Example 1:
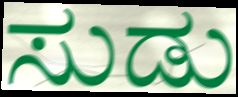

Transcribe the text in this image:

ಸುಡು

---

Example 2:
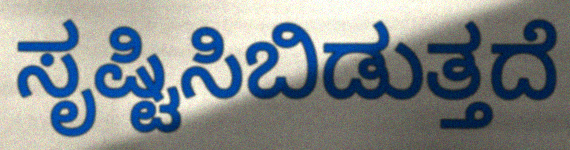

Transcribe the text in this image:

ಸೃಷ್ಟಿಸಿಬಿಡುತ್ತದೆ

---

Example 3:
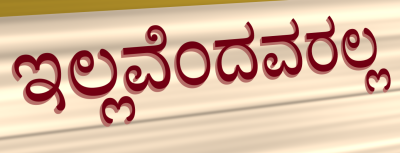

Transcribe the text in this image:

ಇಲ್ಲವೆಂದವರಲ್ಲ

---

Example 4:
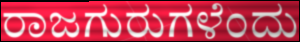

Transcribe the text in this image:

ರಾಜಗುರುಗಳೆಂದು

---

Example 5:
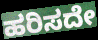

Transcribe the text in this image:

ಹರಿಸದೇ